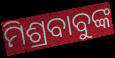
ମିଶ୍ରବାବୁଙ୍କ